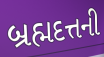
બ્રહ્મદત્તની